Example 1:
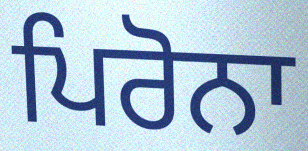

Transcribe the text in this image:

ਪਿਰੋਨਾ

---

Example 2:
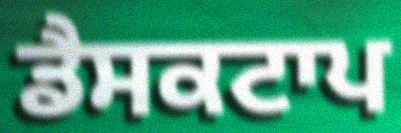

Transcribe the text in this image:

ਡੈਸਕਟਾਪ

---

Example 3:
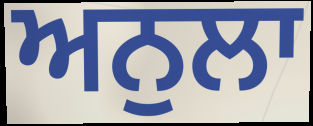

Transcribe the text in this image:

ਅਨੁਲਾ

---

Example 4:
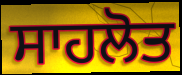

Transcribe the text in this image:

ਸਾਹਲੋਤ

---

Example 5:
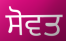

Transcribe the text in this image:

ਸੋਵਤ